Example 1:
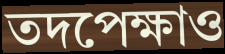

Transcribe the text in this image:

তদপেক্ষাও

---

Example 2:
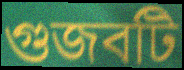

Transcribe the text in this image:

গুজবটি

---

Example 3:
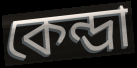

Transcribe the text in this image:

কেন্দ্রা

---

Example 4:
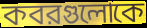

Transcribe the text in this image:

কবরগুলোকে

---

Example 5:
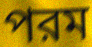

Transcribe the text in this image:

পরম